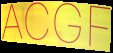
ACGF